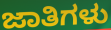
ಜಾತಿಗಳು